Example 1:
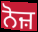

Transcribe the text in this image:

ਨੋਜ਼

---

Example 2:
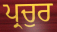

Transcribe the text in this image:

ਪ੍ਰਚੁਰ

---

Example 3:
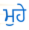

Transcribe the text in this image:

ਮੁਹੇ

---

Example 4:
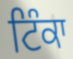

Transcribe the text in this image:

ਟਿੰਕਾ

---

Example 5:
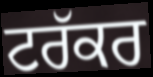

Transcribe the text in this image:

ਟਰੱਕਰ